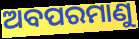
ଅବପରମାଣୁ